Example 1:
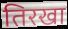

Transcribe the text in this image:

तिरखा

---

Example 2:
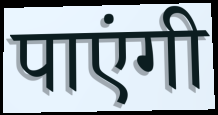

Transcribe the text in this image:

पाएंगी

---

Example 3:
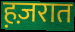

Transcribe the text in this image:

ह़ज़रात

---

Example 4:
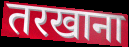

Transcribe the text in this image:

तरखाना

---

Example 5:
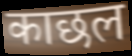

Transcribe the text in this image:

काछल